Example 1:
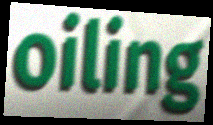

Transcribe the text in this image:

oiling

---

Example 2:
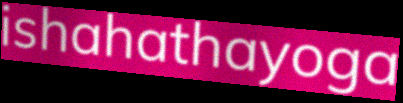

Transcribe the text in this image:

ishahathayoga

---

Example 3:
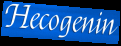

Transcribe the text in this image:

Hecogenin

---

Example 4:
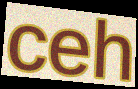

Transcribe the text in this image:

ceh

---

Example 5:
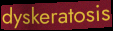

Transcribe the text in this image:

dyskeratosis